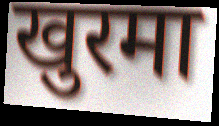
खुरमा